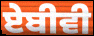
ਏਬੀਵੀ